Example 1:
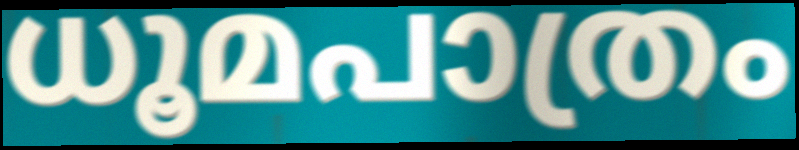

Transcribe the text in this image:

ധൂമപാത്രം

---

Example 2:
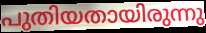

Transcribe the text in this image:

പുതിയതായിരുന്നു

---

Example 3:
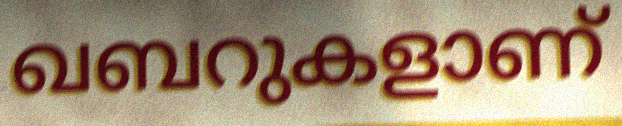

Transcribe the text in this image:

ഖബറുകളാണ്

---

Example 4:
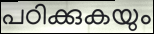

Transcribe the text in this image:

പഠിക്കുകയും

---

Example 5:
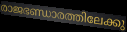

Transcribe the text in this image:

രാജഭണ്ഡാരത്തിലേക്കു